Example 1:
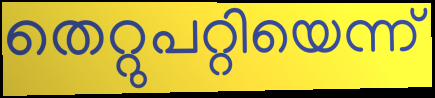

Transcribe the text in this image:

തെറ്റുപറ്റിയെന്ന്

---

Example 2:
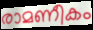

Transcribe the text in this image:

രാമണീകം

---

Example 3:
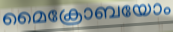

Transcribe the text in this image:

മൈക്രോബയോം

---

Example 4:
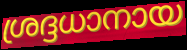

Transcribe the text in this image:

ശ്രദ്ദധാനായ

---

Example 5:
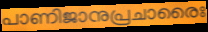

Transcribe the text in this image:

പാണിജാനുപ്രചാരൈഃ